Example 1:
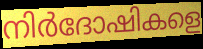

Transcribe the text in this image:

നിർദോഷികളെ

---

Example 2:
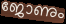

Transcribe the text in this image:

ജോണും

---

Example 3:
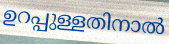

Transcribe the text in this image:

ഉറപ്പുള്ളതിനാൽ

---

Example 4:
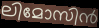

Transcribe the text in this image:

ലിമോസിൻ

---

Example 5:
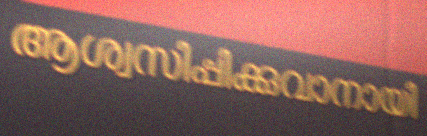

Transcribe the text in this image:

ആശ്വസിപ്പിക്കുവാനായി